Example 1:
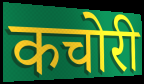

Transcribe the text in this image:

कचोरी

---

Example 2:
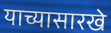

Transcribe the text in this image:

याच्यासारखे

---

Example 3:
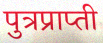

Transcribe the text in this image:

पुत्रप्राप्ती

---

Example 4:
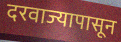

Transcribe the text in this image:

दरवाज्यापासून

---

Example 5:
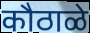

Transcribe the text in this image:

कौठाळे